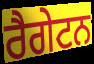
ਰੈਗੇਟਨ